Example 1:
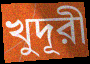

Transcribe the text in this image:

খুদূরী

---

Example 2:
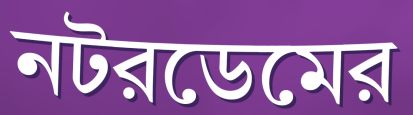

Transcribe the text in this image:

নটরডেমের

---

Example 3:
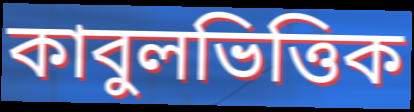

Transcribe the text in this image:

কাবুলভিত্তিক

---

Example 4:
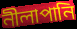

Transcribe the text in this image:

নীলাপানি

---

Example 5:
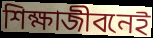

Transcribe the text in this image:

শিক্ষাজীবনেই